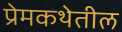
प्रेमकथेतील